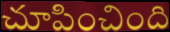
చూపించింది